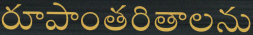
రూపాంతరితాలను